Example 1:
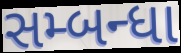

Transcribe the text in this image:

સમ્બન્ધા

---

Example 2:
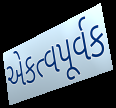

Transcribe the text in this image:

એકત્વપૂર્વક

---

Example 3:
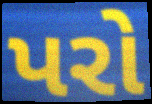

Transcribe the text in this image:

પરો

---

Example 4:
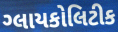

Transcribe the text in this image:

ગ્લાયકોલિટીક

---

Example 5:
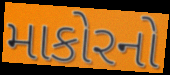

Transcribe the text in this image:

માકોરનો